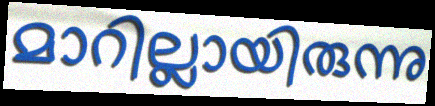
മാറില്ലായിരുന്നു